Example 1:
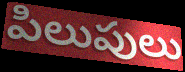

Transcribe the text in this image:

పిలుపులు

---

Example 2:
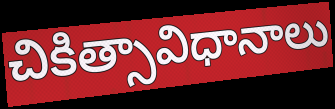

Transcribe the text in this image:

చికిత్సావిధానాలు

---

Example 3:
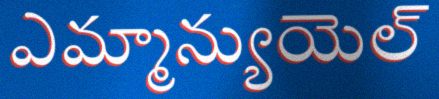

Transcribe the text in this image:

ఎమ్మాన్యుయెల్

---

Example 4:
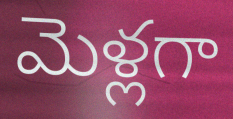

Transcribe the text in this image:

మెళ్లగా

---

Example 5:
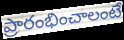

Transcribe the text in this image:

ప్రారంభించాలంటే